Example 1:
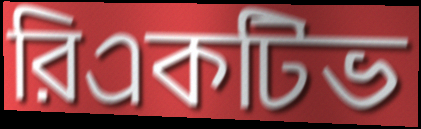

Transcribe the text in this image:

রিএকটিভ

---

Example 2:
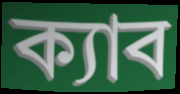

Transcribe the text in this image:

ক্যাব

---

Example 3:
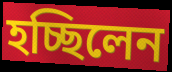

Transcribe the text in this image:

হচ্ছিলেন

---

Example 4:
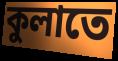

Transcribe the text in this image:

কুলাতে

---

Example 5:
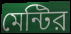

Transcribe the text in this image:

মেন্টির